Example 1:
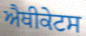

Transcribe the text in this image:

ਐਥੀਕੇਟਸ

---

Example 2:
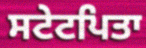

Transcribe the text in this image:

ਸਟੇਟਪਿਤਾ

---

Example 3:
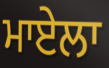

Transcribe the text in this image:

ਮਾਏਲਾ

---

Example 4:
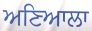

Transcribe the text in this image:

ਅਣਿਆਲਾ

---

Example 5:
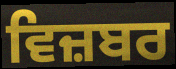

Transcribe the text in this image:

ਵਿਜ਼ਬਰ